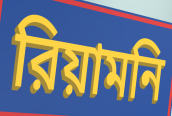
রিয়ামনি